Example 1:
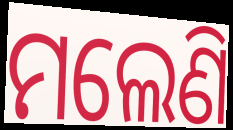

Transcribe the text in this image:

ମଲେଣି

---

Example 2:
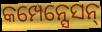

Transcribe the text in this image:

କମ୍ପେନ୍ସେସନ୍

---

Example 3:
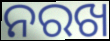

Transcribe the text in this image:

ନରଖ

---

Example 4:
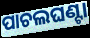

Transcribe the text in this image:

ପାଚଲଘଣ୍ଟା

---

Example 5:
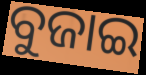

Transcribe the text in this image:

ବୁଜାଇ